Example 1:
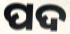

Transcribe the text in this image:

ପଦ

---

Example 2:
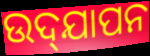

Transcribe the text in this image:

ଉଦ୍‌ଯାପନ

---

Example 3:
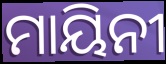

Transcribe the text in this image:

ମାୟିନୀ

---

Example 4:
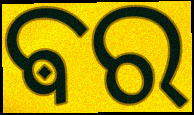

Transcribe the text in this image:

ଵର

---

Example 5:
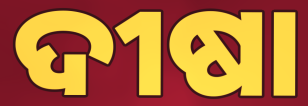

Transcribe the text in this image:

ଦୀଷା